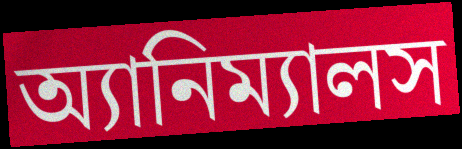
অ্যানিম্যালস